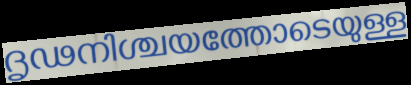
ദൃഢനിശ്ചയത്തോടെയുള്ള